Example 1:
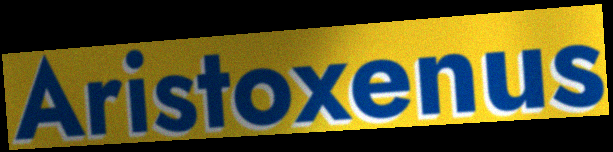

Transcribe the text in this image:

Aristoxenus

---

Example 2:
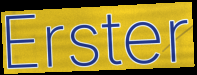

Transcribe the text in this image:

Erster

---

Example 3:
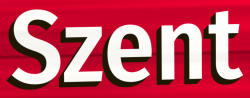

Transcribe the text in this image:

Szent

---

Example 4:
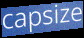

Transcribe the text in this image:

capsize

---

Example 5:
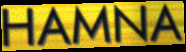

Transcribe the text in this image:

HAMNA